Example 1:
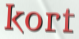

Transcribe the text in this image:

kort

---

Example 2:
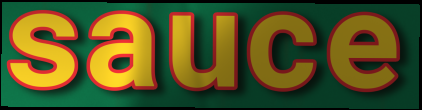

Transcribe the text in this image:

sauce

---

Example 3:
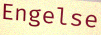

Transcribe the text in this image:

Engelse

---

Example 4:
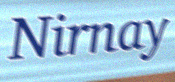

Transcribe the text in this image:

Nirnay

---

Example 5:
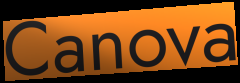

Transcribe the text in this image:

Canova